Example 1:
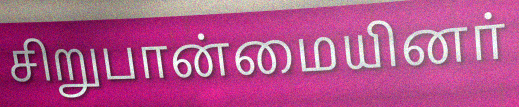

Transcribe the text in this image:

சிறுபான்மையினர்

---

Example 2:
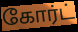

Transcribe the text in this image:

கோர்ட்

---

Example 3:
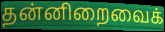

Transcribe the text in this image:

தன்னிறைவைக்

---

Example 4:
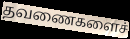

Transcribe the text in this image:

தவணைகளைச்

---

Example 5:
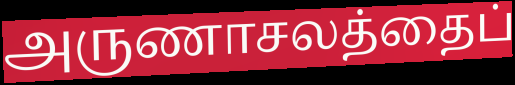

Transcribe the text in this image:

அருணாசலத்தைப்